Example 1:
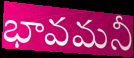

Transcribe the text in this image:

భావమనీ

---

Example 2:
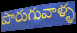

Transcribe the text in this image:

పొరుగువాళ్ళ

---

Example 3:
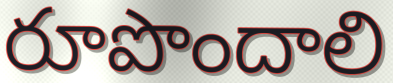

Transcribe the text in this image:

రూపొందాలి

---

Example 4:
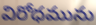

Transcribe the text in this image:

విరోధమును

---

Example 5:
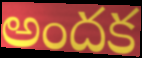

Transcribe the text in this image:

అందక